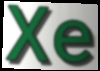
Xe